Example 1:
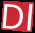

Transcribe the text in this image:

Dl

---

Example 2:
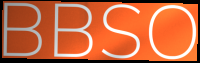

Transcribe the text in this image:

BBSO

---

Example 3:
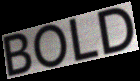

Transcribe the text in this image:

BOLD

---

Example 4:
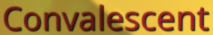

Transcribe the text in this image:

Convalescent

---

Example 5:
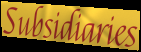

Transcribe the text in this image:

Subsidiaries